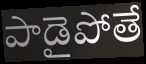
పాడైపోతే